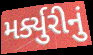
મર્ક્યુરીનું